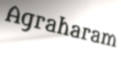
Agraharam